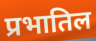
प्रभातिल